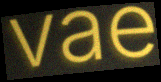
vae